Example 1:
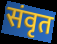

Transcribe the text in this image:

संवृत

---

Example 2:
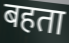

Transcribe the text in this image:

बहता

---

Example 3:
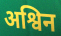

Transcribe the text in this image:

अश्विन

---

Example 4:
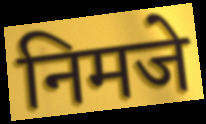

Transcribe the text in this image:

निमजे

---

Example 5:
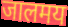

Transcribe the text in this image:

जालमय